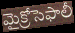
మైక్రోసెఫాలీ